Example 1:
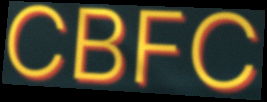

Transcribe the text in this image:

CBFC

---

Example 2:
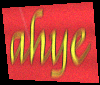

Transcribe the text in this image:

ahye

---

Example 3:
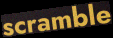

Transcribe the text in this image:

scramble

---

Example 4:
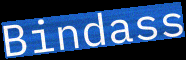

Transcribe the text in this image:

Bindass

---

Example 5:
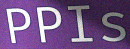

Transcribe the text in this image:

PPIs